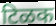
टिळक